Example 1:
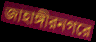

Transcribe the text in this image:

জাহাঙ্গীরনগরে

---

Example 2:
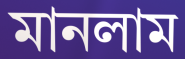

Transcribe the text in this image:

মানলাম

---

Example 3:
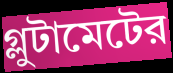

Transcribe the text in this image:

গ্লুটামেটের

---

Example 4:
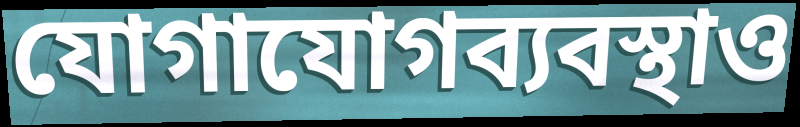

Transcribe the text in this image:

যোগাযোগব্যবস্থাও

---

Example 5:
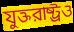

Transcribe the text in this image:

যুক্তরাষ্ট্রও